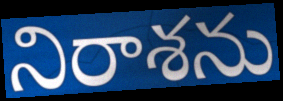
నిరాశను